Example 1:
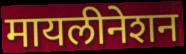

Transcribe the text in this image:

मायलीनेशन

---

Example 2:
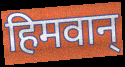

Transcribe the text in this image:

हिमवान्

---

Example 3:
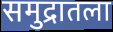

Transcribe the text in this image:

समुद्रातला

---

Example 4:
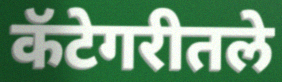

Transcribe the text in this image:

कॅटेगरीतले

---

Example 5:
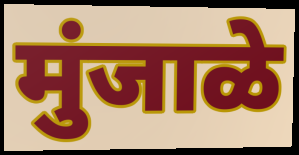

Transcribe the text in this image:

मुंजाळे